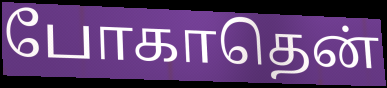
போகாதென்